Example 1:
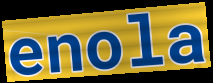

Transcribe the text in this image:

enola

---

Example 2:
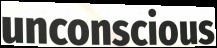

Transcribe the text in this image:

unconscious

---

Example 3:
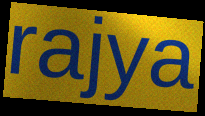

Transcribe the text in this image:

rajya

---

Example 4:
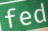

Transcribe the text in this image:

fed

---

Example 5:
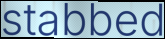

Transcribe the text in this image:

stabbed